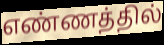
எண்ணத்தில்